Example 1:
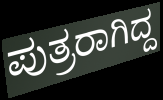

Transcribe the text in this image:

ಪುತ್ರರಾಗಿದ್ದ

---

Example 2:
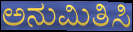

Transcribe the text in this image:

ಅನುಮಿತಿಸಿ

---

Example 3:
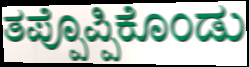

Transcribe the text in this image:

ತಪ್ಪೊಪ್ಪಿಕೊಂಡು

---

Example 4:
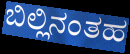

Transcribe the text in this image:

ಬಿಲ್ಲಿನಂತಹ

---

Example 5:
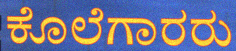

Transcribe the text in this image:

ಕೊಲೆಗಾರರು